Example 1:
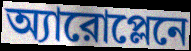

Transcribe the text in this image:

অ্যারোপ্লেনে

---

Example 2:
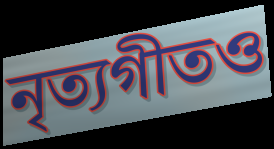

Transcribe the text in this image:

নৃত্যগীতও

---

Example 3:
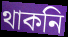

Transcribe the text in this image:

থাকনি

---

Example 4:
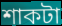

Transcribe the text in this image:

শাকটা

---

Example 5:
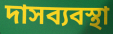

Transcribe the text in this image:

দাসব্যবস্থা